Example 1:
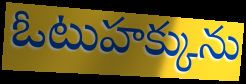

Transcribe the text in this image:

ఓటుహక్కును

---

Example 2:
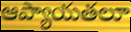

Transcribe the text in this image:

ఆప్యాయతలూ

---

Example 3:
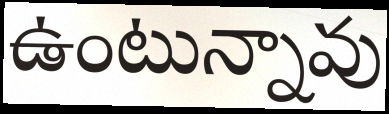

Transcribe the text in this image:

ఉంటున్నావు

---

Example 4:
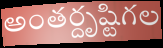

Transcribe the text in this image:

అంతర్దృష్టిగల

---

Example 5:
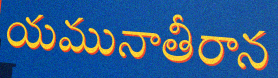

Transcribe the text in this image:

యమునాతీరాన